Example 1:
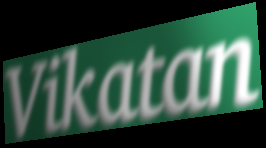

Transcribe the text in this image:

Vikatan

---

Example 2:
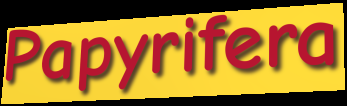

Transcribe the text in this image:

Papyrifera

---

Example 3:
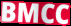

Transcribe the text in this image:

BMCC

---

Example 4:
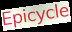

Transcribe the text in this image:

Epicycle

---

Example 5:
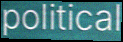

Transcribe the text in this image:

political